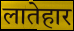
लातेहार